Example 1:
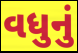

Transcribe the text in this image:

વધુનું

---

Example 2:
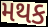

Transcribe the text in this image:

મથક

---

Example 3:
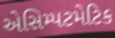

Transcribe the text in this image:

એસિમ્પટમેટિક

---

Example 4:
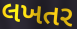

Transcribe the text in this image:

લખતર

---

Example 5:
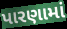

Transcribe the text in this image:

પારણામાં